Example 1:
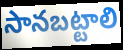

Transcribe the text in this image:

సానబట్టాలి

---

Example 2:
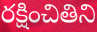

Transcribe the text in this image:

రక్షించితిని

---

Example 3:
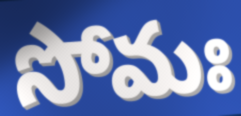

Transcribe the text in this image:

సోమః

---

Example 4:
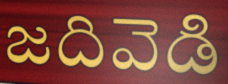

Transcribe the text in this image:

జదివెడి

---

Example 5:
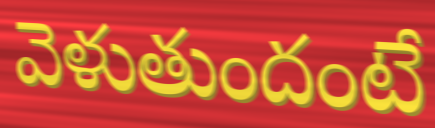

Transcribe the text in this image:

వెళుతుందంటే